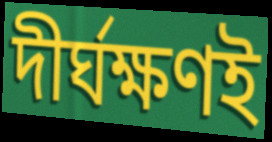
দীর্ঘক্ষণই